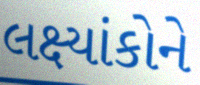
લક્ષ્યાંકોને